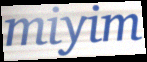
miyim